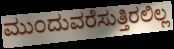
ಮುಂದುವರೆಸುತ್ತಿರಲಿಲ್ಲ